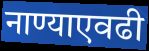
नाण्याएवढी